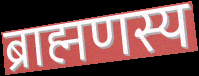
ब्राह्मणस्य